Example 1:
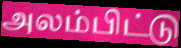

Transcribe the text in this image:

அலம்பிட்டு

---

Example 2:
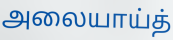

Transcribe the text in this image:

அலையாய்த்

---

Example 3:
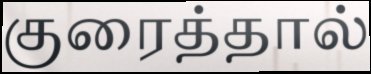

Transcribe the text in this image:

குரைத்தால்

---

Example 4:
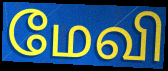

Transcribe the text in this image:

மேவி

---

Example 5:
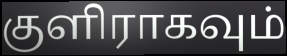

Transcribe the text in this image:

குளிராகவும்